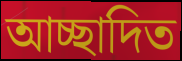
আচ্ছাদিত